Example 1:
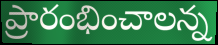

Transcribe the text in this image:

ప్రారంభించాలన్న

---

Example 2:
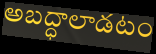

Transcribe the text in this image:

అబద్ధాలాడటం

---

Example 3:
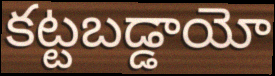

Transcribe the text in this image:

కట్టబడ్డాయో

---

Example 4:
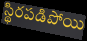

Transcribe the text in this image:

స్థిరపడిపోయి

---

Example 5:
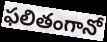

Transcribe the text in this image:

ఫలితంగానో